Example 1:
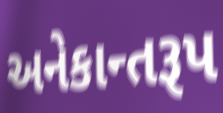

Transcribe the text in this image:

અનેકાન્તરૂપ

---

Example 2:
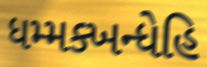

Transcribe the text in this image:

ધમ્મક્ખન્ધેહિ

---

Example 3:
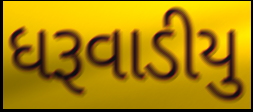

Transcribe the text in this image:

ધરૂવાડીયુ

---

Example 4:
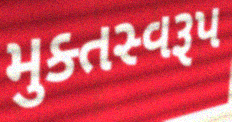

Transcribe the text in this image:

મુક્તસ્વરૂપ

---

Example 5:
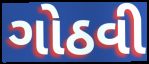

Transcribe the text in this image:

ગોઠવી